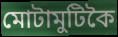
মোটামুটিকৈ